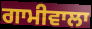
ਗਾਮੀਵਾਲਾ